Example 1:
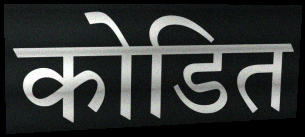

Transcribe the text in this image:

कोडित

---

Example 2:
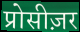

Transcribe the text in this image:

प्रोसीज़र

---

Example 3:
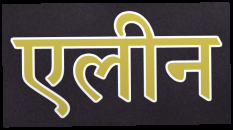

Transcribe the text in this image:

एलीन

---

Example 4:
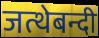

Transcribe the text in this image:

जत्थेबन्दी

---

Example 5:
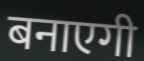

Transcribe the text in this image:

बनाएगी